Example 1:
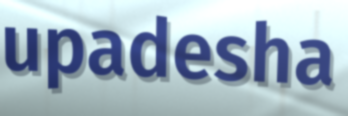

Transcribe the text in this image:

upadesha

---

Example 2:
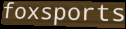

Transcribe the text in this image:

foxsports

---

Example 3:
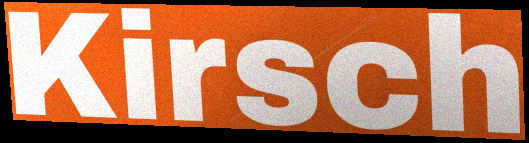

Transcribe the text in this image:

Kirsch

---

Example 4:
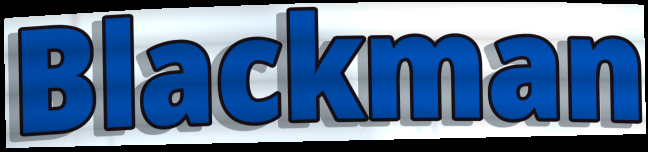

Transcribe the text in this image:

Blackman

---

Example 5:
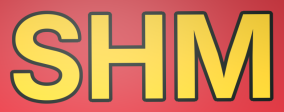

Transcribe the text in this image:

SHM